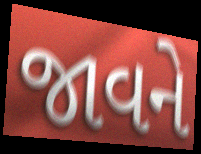
જાવને